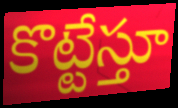
కొట్టేస్తూ